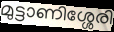
മുട്ടാണിശ്ശേരി